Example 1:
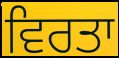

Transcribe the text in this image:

ਵਿਰਤਾ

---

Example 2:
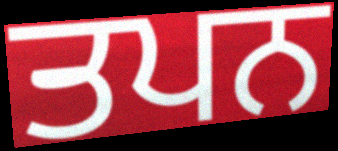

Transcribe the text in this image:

ਤਪਨ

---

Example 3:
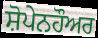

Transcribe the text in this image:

ਸ਼ੋਪੇਨਹੌਅਰ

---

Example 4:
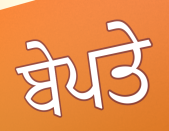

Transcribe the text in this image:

ਬੇਪਤੇ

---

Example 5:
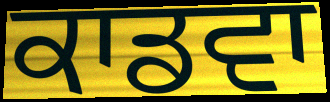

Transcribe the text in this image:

ਕਾਡਵਾ